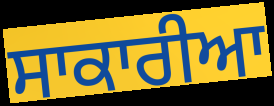
ਸਾਕਾਰੀਆ